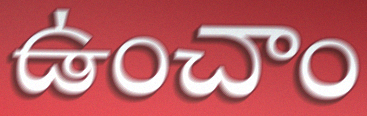
ఉంచాం